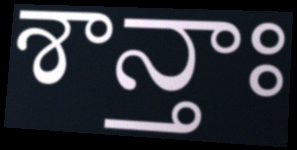
శాన్తాః